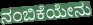
ನಂಬಿಕೆಯೇನು